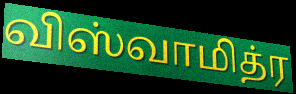
விஸ்வாமித்ர